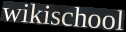
wikischool